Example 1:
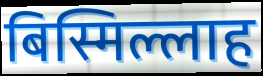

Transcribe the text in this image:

बिस्मिल्लाह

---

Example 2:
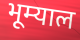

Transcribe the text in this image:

भूम्याल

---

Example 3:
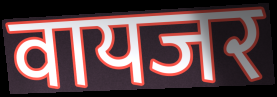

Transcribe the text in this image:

वायजर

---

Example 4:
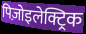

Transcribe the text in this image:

पिज़ोइलेक्ट्रिक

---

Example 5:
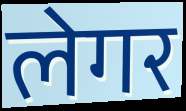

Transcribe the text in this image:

लेगर